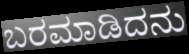
ಬರಮಾಡಿದನು